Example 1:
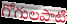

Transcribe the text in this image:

గోగులపాటి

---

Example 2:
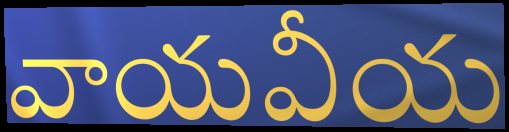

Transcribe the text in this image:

వాయవీయ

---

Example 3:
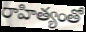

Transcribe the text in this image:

రాహిత్యంతో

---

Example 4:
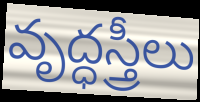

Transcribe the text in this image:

వృద్ధస్త్రీలు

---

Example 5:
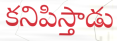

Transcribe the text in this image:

కనిపిస్తాడు